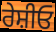
ਰੇਸ਼ੀਓ